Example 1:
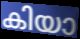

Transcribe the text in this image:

കിയാ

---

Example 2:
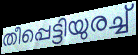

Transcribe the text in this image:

തീപ്പെട്ടിയുരച്ച്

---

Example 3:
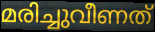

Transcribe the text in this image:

മരിച്ചുവീണത്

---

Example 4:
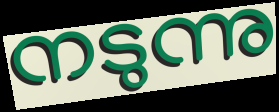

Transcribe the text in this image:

നടുന്നു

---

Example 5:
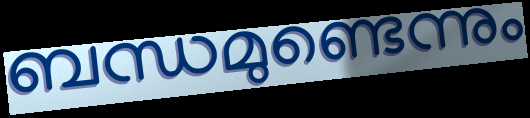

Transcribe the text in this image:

ബന്ധമുണ്ടെന്നും